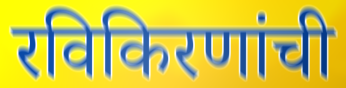
रविकिरणांची